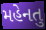
મહેનતુ